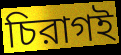
চিরাগই